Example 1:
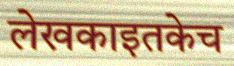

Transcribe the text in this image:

लेखकाइतकेच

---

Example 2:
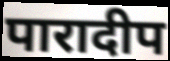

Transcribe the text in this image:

पारादीप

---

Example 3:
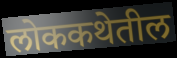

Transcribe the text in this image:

लोककथेतील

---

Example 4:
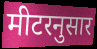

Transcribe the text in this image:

मीटरनुसार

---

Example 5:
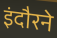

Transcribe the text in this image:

इंदौरने